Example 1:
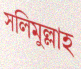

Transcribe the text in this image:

সলিমুল্লাহ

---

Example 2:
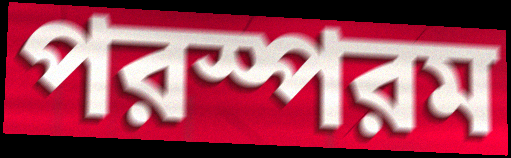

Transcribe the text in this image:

পরস্পরম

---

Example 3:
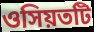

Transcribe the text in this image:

ওসিয়তটি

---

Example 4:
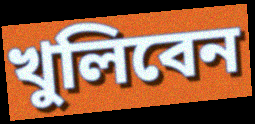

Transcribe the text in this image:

খুলিবেন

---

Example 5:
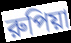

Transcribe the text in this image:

রুপিয়া